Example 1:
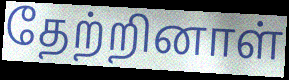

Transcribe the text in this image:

தேற்றினாள்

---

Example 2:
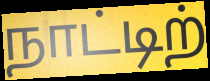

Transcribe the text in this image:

நாட்டிற்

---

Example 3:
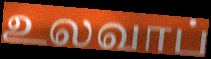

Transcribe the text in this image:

உலவாப்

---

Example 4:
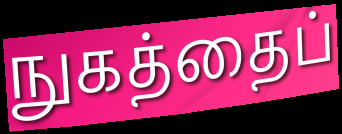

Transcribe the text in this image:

நுகத்தைப்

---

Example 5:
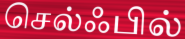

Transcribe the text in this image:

செல்ஃபில்